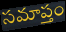
సమాప్తం